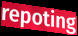
repoting